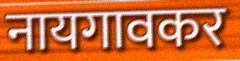
नायगावकर